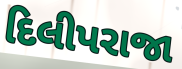
દિલીપરાજા